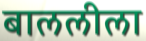
बाललीला